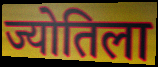
ज्योतिला